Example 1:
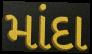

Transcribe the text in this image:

માંદા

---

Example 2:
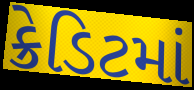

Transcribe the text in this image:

ક્રેડિટમાં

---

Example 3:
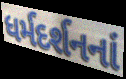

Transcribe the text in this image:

ધર્મદર્શનનાં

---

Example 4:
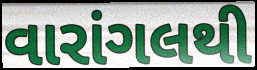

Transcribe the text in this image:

વારાંગલથી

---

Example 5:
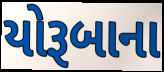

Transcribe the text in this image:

યોરૂબાના